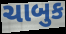
ચાબુક